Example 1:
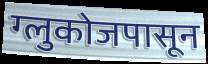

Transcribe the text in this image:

ग्लुकोजपासून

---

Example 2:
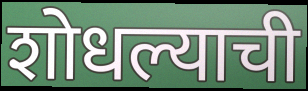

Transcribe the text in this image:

शोधल्याची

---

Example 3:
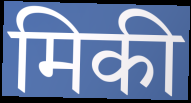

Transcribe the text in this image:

मिकी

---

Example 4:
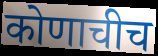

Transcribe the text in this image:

कोणाचीच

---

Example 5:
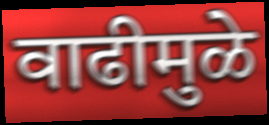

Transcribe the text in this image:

वाढीमुळे